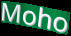
Moho